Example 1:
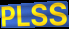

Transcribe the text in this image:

PLSS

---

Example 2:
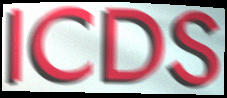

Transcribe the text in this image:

ICDS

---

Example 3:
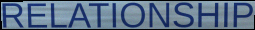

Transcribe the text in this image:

RELATIONSHIP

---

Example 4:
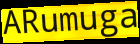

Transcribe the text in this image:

ARumuga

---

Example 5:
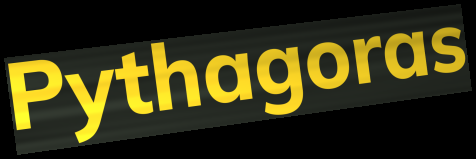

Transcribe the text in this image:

Pythagoras